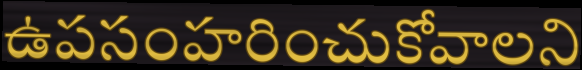
ఉపసంహరించుకోవాలని